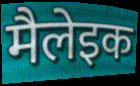
मैलेइक